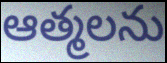
ఆత్మలను